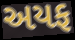
અયફ